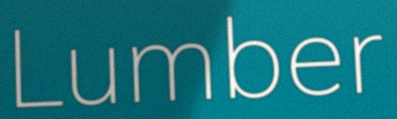
Lumber